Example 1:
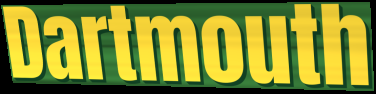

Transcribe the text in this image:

Dartmouth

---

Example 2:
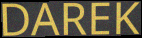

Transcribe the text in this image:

DAREK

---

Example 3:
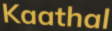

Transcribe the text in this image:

Kaathal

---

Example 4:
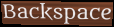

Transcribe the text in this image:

Backspace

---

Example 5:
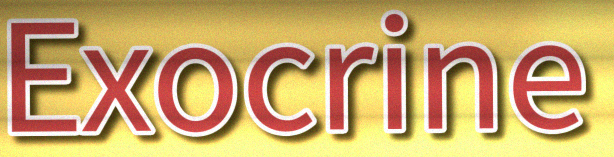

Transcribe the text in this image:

Exocrine